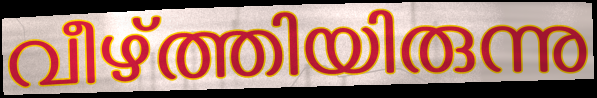
വീഴ്ത്തിയിരുന്നു